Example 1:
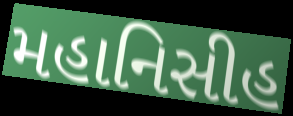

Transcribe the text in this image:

મહાનિસીહ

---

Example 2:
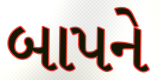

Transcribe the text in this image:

બાપને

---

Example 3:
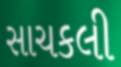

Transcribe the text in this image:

સાચકલી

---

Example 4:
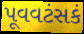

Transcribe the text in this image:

પૂવવટંસકં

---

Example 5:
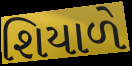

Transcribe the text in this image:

શિયાળે